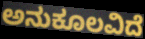
ಅನುಕೂಲವಿದೆ